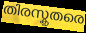
തിരസ്കൃതരെ